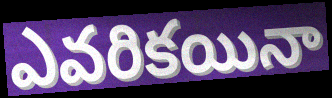
ఎవరికయినా